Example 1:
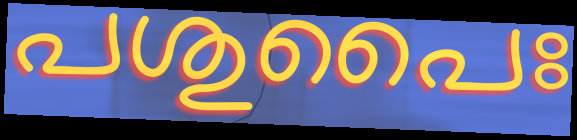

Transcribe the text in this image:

പശുപൈഃ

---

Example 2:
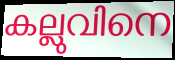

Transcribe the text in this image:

കല്ലുവിനെ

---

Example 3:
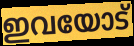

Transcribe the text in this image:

ഇവയോട്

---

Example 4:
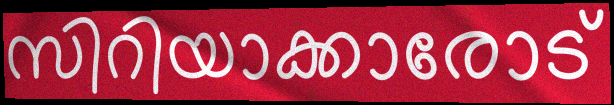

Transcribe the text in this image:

സിറിയാക്കാരോട്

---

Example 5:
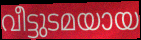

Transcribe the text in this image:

വീട്ടുടമയായ